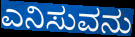
ಎನಿಸುವನು